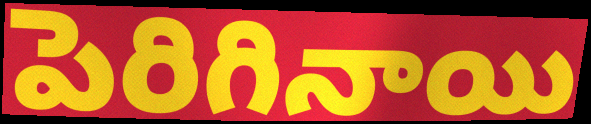
పెరిగినాయి